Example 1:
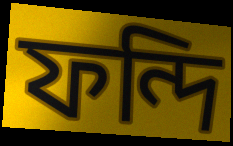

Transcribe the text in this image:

ফন্দি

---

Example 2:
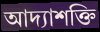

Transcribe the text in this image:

আদ্যাশক্তি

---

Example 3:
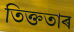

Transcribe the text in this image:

তিক্ততাৰ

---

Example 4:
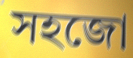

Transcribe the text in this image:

সহজো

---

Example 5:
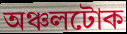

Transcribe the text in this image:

অঞ্চলটোক